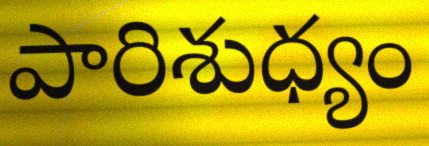
పారిశుధ్యం